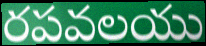
రపవలయు